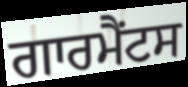
ਗਾਰਮੈਂਟਸ